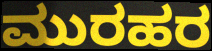
ಮುರಹರ